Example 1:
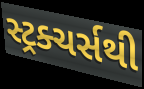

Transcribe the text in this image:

સ્ટ્રક્ચર્સથી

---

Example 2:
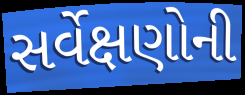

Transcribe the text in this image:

સર્વેક્ષણોની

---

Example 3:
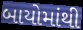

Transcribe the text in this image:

બાયોમાંથી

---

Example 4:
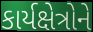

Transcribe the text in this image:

કાર્યક્ષેત્રોને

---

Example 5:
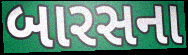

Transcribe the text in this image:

બારસના